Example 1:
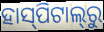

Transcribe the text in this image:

ହାସ୍‍ପିଟାଲ୍‍ରୁ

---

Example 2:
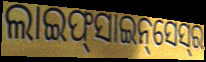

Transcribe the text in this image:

ଲାଇଫ୍‌ସାଇନ୍‌ସେସ୍‌ର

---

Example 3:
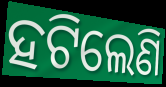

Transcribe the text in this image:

ହଟିଲେଣି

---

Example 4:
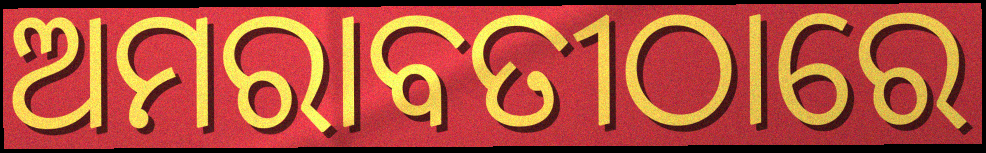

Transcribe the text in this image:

ଅମରାବତୀଠାରେ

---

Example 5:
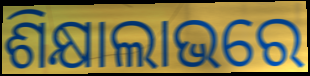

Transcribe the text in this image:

ଶିକ୍ଷାଲାଭରେ